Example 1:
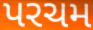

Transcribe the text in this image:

પરચમ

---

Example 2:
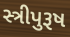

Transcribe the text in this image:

સ્ત્રીપુરૂષ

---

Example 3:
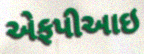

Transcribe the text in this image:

એફપીઆઇ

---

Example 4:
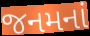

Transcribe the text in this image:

જનમનાં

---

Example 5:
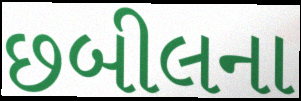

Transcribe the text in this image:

છબીલના